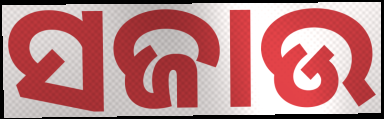
ସଜାଉ